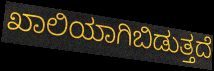
ಖಾಲಿಯಾಗಿಬಿಡುತ್ತದೆ